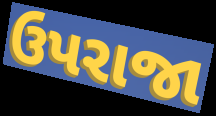
ઉપરાજા